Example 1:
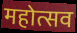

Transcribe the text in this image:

महोत्सव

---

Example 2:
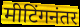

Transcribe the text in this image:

मीटिंगनंतर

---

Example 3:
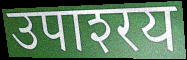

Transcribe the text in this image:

उपाश्रय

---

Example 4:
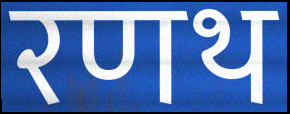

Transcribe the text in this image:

रणथ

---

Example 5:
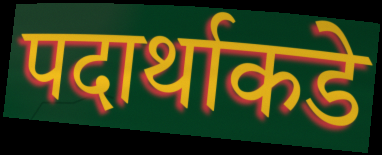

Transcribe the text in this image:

पदार्थाकडे